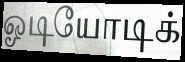
ஓடியோடிக்